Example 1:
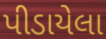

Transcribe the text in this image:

પીડાયેલા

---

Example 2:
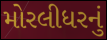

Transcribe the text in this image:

મોરલીધરનું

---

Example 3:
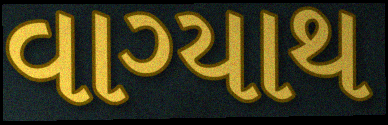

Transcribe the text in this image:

વાગ્યાથ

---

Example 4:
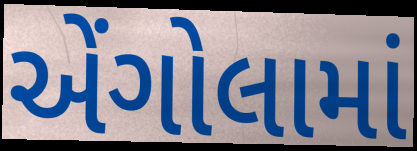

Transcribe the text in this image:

એંગોલામાં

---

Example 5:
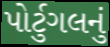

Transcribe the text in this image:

પોર્ટુગલનું